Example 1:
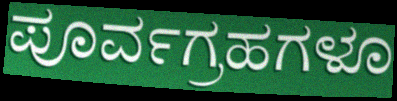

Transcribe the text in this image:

ಪೂರ್ವಗ್ರಹಗಳೂ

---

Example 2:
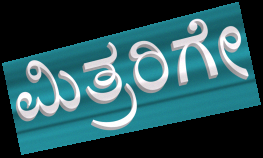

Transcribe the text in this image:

ಮಿತ್ರರಿಗೇ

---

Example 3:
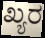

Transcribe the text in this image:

ಖ್ಯರ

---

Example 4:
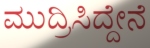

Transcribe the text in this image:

ಮುದ್ರಿಸಿದ್ದೇನೆ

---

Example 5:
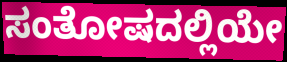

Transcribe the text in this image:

ಸಂತೋಷದಲ್ಲಿಯೇ